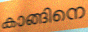
കാങ്ങിനെ